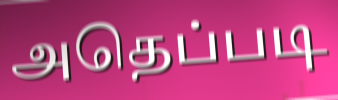
அதெப்படி